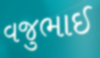
વજુભાઈ